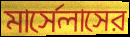
মার্সেলাসের